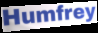
Humfrey